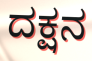
ದಕ್ಷನ